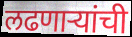
लढणाऱ्यांची